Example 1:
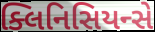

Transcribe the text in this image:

ક્લિનિસિયન્સે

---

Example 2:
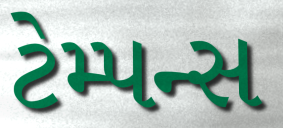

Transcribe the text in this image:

ટેમ્પન્સ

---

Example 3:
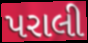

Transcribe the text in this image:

પરાલી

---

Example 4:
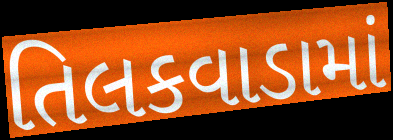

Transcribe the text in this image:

તિલકવાડામાં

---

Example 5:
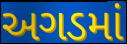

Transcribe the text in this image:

અગડમાં